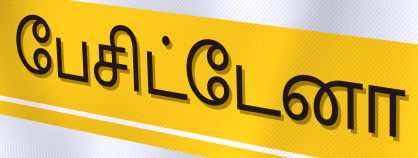
பேசிட்டேனா